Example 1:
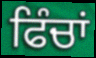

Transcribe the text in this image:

ਫਿੰਚਾਂ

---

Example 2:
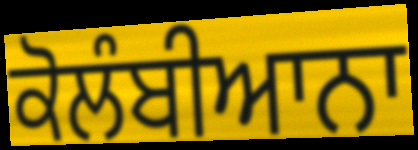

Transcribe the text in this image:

ਕੋਲੰਬੀਆਨਾ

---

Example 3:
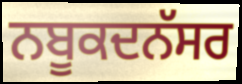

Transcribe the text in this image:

ਨਬੂਕਦਨੱਸਰ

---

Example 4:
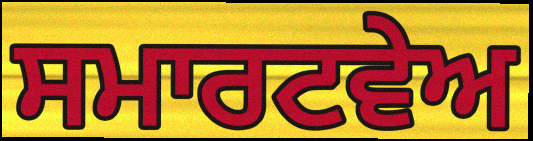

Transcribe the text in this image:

ਸਮਾਰਟਵੇਅ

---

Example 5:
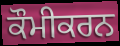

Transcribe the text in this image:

ਕੌਮੀਕਰਨ